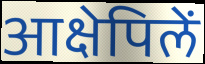
आक्षेपिलें